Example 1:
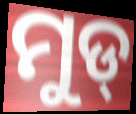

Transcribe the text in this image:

ମୁଡ୍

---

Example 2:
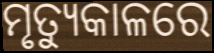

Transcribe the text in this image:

ମୃତ୍ୟୁକାଳରେ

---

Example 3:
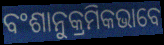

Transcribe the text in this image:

ବଂଶାନୁକ୍ରମିକଭାବେ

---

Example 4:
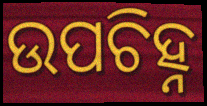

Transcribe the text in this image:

ଉପଚିହ୍ନ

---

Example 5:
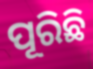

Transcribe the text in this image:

ପୂରିଛି